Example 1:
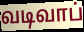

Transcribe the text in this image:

வடிவாப்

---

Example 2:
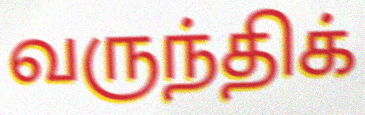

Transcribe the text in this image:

வருந்திக்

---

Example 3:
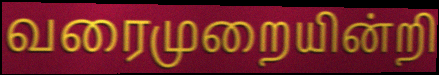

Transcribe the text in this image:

வரைமுறையின்றி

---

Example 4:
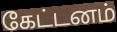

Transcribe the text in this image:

கேட்டனம்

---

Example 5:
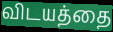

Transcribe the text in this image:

விடயத்தை